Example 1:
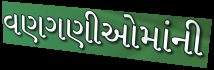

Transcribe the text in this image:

વણગણીઓમાંની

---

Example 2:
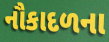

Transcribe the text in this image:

નૌકાદળના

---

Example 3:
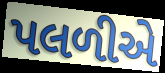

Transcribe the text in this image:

પલળીએ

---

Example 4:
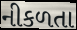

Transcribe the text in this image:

નીકળતા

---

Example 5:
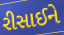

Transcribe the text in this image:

રીસાઈને